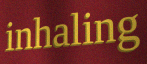
inhaling